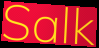
Salk